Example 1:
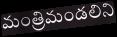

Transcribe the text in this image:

మంత్రిమండలిని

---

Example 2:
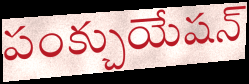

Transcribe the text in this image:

పంక్చుయేషన్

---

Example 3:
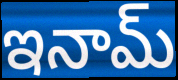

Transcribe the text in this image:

ఇనామ్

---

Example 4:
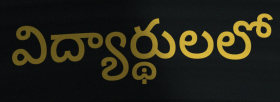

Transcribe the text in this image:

విద్యార్థులలో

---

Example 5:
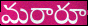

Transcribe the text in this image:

మరారూ